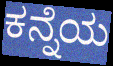
ಕನ್ನೆಯ